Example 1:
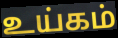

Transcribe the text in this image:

உய்கம்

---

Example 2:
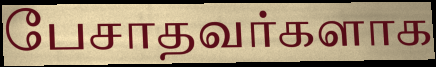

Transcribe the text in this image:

பேசாதவர்களாக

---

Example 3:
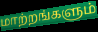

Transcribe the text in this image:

மாற்றங்களும்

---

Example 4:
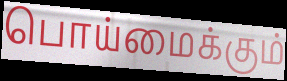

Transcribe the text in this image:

பொய்மைக்கும்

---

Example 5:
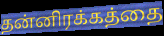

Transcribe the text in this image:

தன்னிரக்கத்தை